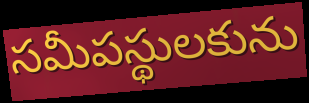
సమీపస్థులకును